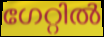
ഗേറ്റിൽ